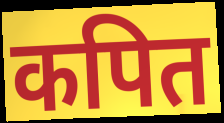
कपित